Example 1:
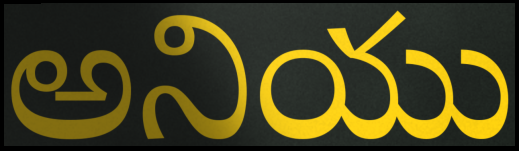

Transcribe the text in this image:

అనియు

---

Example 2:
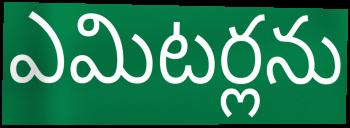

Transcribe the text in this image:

ఎమిటర్లను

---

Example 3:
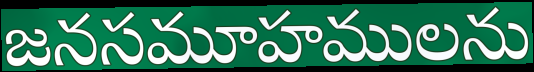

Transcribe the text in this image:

జనసమూహములను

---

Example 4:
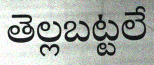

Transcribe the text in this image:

తెల్లబట్టలే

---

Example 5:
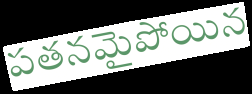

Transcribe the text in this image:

పతనమైపోయిన